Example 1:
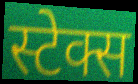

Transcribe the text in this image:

स्टेक्स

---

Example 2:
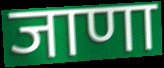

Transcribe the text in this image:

जाणा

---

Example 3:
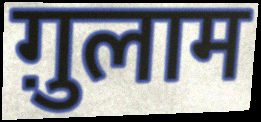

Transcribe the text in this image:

ग़ुलाम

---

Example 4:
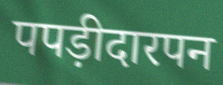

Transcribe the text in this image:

पपड़ीदारपन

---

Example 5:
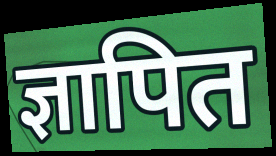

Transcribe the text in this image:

ज्ञापित